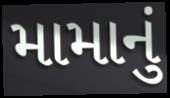
મામાનું